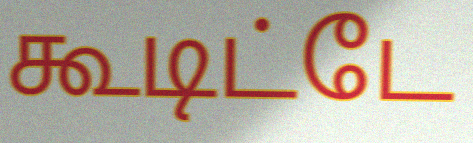
கூடிட்டே